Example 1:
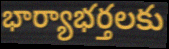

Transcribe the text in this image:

భార్యాభర్తలకు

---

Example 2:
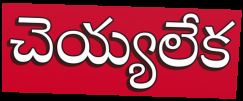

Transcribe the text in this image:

చెయ్యలేక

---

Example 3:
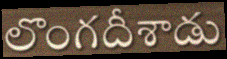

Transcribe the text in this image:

లొంగదీశాడు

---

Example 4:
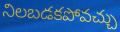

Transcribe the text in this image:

నిలబడకపోవచ్చు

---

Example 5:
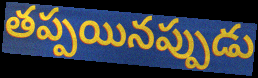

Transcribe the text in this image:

తప్పయినప్పుడు